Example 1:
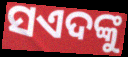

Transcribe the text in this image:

ସଏଦଙ୍କୁ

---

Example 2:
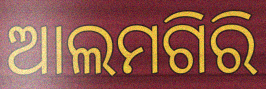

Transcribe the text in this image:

ଆଲମଗିରି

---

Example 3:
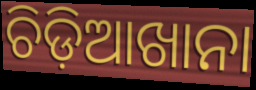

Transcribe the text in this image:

ଚିଡ଼ିଆଖାନା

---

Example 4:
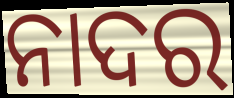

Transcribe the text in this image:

ନାଦର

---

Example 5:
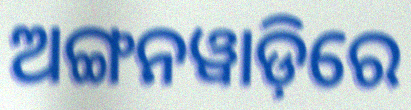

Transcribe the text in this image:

ଅଙ୍ଗନୱାଡ଼ିରେ